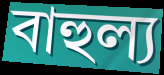
বাহুল্য